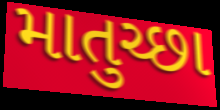
માતુચ્છા